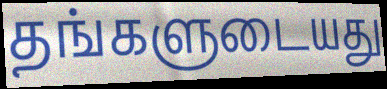
தங்களுடையது